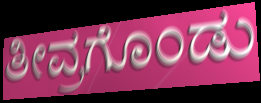
ತೀವ್ರಗೊಂಡು